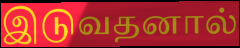
இடுவதனால்